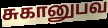
சுகானுபவ